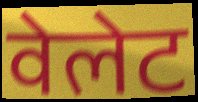
वेलेट